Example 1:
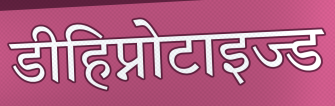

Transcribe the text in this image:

डीहिप्नोटाइज्ड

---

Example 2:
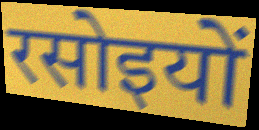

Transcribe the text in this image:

रसोइयों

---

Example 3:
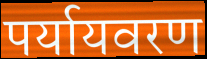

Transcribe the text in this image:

पर्यायवरण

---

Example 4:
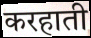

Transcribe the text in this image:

करहाती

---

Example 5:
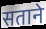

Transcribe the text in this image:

सताने